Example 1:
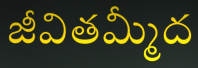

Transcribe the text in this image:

జీవితమ్మీద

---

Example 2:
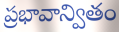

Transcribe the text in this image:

ప్రభావాన్వితం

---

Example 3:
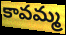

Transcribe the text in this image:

కావమ్మ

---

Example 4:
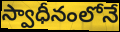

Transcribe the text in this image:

స్వాధీనంలోనే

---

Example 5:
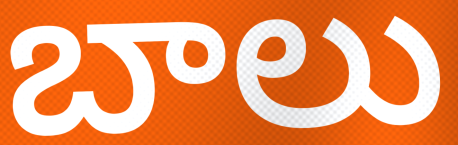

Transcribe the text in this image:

బాలు